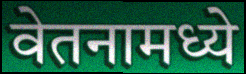
वेतनामध्ये